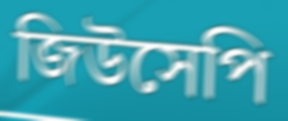
জিউসেপি